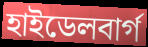
হাইডেলবার্গ